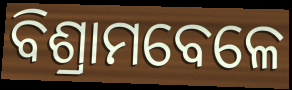
ବିଶ୍ରାମବେଳେ